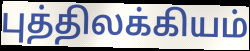
புத்திலக்கியம்